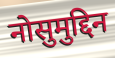
नोसुमुद्दिन